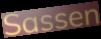
Sassen